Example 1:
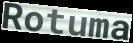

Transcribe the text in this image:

Rotuma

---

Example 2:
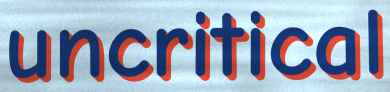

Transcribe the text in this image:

uncritical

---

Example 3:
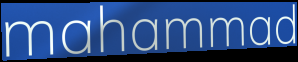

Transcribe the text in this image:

mahammad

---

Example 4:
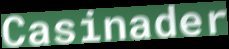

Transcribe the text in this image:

Casinader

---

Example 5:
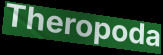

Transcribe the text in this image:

Theropoda